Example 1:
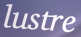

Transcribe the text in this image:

lustre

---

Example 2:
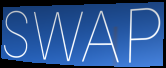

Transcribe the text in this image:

SWAP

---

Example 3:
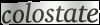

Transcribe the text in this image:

colostate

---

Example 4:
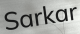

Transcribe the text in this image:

Sarkar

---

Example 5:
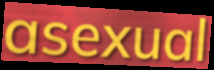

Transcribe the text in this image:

asexual